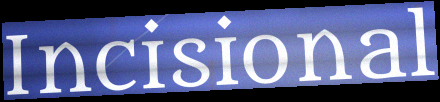
Incisional